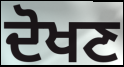
ਦੋਖਣ